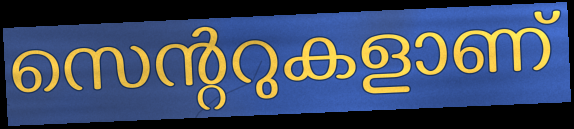
സെന്ററുകളാണ്